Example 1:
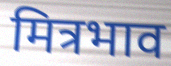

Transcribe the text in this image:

मित्रभाव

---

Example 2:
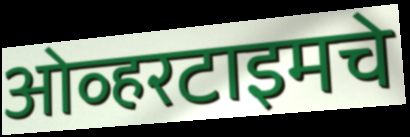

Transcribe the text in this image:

ओव्हरटाइमचे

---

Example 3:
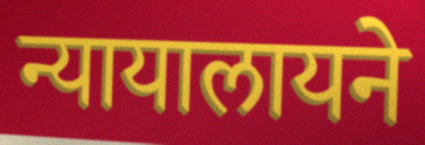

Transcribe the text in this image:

न्यायालायने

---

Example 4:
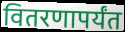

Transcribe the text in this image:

वितरणापर्यंत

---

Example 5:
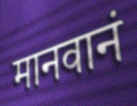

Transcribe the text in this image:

मानवानं